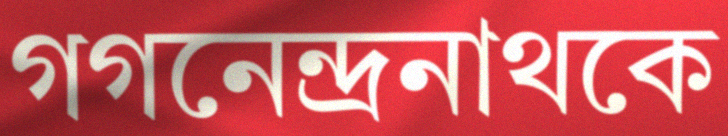
গগনেন্দ্রনাথকে